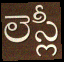
లెస్లీ